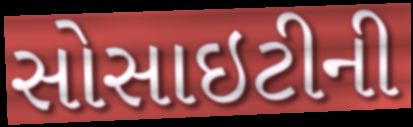
સોસાઇટીની